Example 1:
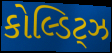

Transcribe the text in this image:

કોલ્ડિટ્ઝ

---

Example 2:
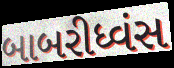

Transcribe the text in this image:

બાબરીધ્વંસ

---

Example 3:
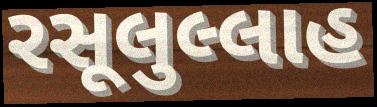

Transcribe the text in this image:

રસૂલુલ્લાહ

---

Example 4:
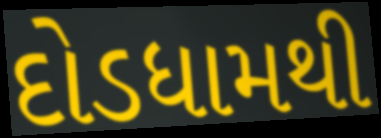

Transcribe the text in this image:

દોડધામથી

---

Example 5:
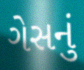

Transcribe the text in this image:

ગેસનું